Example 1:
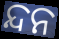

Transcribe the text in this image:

ନ୍ଦନ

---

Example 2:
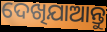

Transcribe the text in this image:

ଦେଖିଯାଆନ୍ତୁ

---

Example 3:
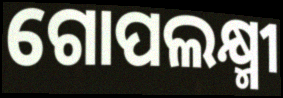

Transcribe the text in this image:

ଗୋପଲକ୍ଷ୍ମୀ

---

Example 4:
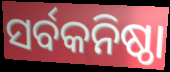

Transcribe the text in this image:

ସର୍ବକନିଷ୍ଠା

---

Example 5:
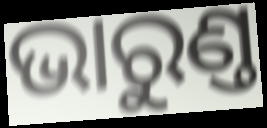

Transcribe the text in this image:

ଭାରୁଣ୍ତ